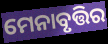
ମେନାବୃତ୍ତିର